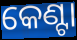
କେଣ୍ଟା